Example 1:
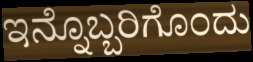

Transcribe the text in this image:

ಇನ್ನೊಬ್ಬರಿಗೊಂದು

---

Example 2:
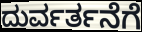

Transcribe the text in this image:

ದುರ್ವರ್ತನೆಗೆ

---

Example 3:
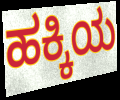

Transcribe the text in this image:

ಹಕ್ಕಿಯ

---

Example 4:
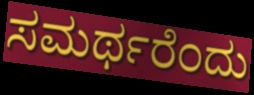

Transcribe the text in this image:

ಸಮರ್ಥರೆಂದು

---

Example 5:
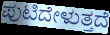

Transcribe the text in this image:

ಪುಟಿದೇಳುತ್ತದೆ